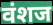
वंशज